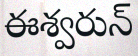
ఈశ్వరున్